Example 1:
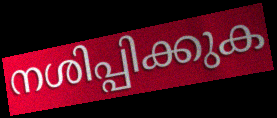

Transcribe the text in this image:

നശിപ്പിക്കുക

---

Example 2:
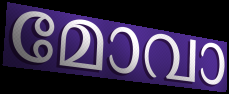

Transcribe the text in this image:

മോവാ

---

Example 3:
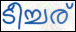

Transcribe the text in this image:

ടീച്ചര്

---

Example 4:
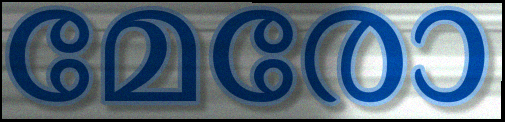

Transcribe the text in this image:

മേരോ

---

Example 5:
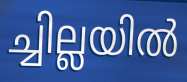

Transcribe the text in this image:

ച്ചില്ലയിൽ